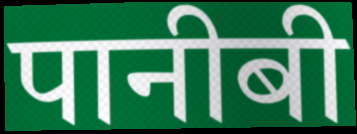
पानीबी